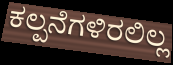
ಕಲ್ಪನೆಗಳಿರಲಿಲ್ಲ